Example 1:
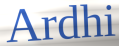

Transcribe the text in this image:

Ardhi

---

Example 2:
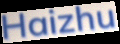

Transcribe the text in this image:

Haizhu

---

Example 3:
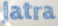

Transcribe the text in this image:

Jatra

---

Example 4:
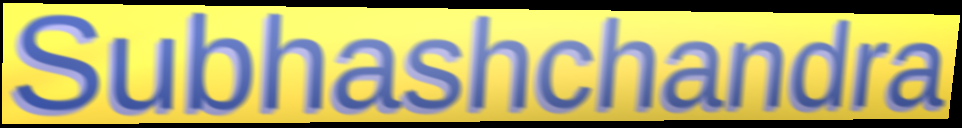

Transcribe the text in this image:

Subhashchandra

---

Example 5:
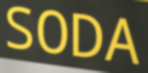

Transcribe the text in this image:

SODA